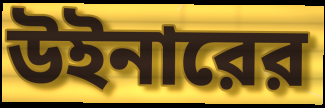
উইনারের